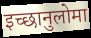
इच्छानुलोमा